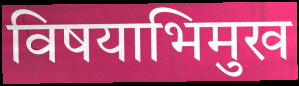
विषयाभिमुख